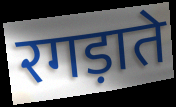
रगड़ाते